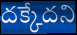
దక్కేదని